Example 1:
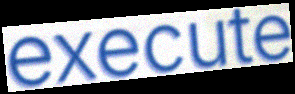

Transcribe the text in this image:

execute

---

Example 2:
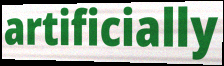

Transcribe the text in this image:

artificially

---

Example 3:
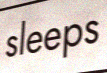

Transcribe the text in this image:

sleeps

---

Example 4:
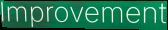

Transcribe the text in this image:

Improvement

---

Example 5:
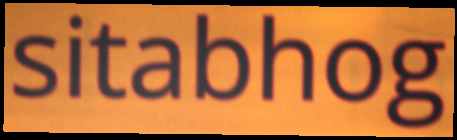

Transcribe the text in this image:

sitabhog